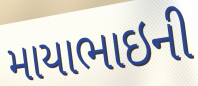
માયાભાઇની